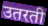
उतरती